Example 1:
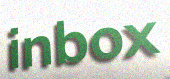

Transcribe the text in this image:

inbox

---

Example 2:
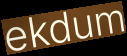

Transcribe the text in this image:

ekdum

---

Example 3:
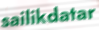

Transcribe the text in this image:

sailikdatar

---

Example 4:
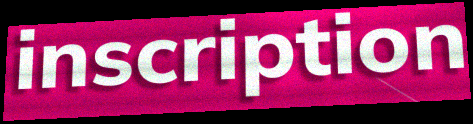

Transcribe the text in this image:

inscription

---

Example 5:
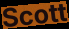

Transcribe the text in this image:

Scott